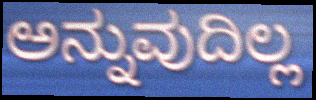
ಅನ್ನುವುದಿಲ್ಲ